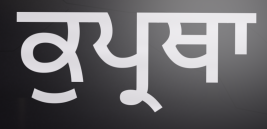
ਕੁਪ੍ਰਥਾ